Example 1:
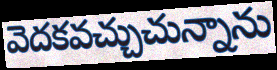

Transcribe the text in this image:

వెదకవచ్చుచున్నాను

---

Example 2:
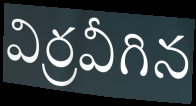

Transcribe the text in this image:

విర్రవీగిన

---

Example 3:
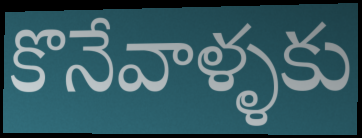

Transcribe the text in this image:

కొనేవాళ్ళకు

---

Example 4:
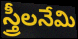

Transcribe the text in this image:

స్త్రీలనేమి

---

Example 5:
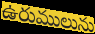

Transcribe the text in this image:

ఉరుములును